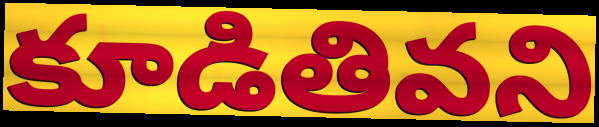
కూడితివని